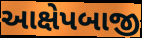
આક્ષેપબાજી